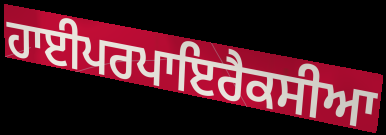
ਹਾਈਪਰਪਾਇਰੈਕਸੀਆ